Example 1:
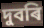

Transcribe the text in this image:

দুবৰি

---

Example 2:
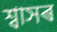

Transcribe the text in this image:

শ্বাসৰ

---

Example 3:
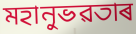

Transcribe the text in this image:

মহানুভৱতাৰ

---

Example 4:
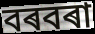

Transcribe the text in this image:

বৰবৰা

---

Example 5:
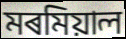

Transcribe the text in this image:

মৰমিয়াল